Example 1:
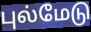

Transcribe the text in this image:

புல்மேடு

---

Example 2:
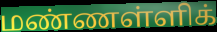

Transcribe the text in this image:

மண்ணள்ளிக்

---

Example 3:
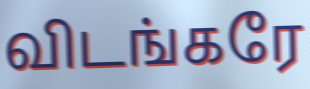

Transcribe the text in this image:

விடங்கரே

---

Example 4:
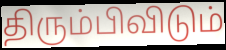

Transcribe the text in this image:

திரும்பிவிடும்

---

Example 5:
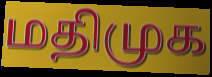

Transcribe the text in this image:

மதிமுக